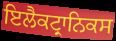
ਇਲੈਕਟ੍ਰਾਨਿਕਸ